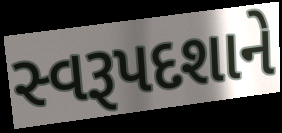
સ્વરૂપદશાને